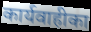
कार्यवाहीका